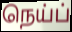
நெய்ப்